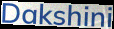
Dakshini